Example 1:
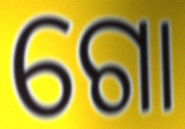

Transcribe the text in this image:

ଗୋ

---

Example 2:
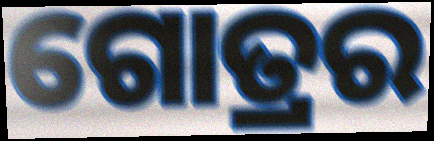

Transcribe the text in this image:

ଗୋତ୍ରର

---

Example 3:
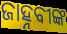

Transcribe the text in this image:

ଜାହ୍ନବୀଙ୍କ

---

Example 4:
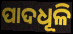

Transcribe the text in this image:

ପାଦଧୂଳି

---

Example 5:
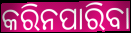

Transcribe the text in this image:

କରିନପାରିବା